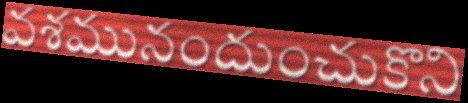
వశమునందుంచుకొని